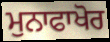
ਮੁਨਾਫਾਖੋਰ